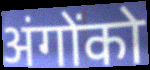
अंगोंको